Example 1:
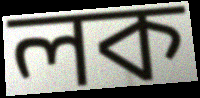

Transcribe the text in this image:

লক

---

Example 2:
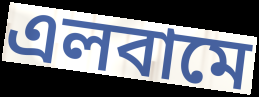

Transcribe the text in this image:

এলবামে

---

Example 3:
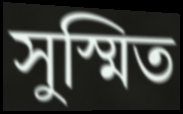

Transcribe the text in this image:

সুস্মিত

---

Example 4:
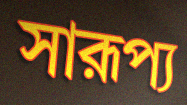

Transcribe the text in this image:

সারূপ্য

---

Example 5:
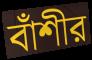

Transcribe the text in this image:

বাঁশীর